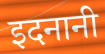
इदनानी